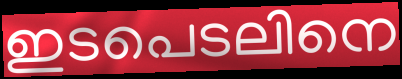
ഇടപെടലിനെ